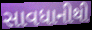
સાવધાનીથી